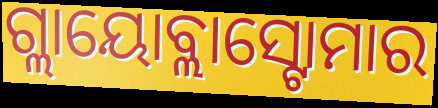
ଗ୍ଲାୟୋବ୍ଲାସ୍ଟୋମାର